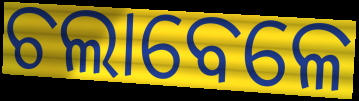
ଚଲାବେଳେ